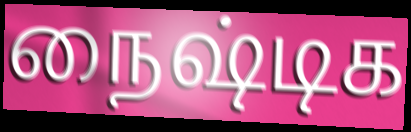
நைஷ்டிக